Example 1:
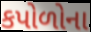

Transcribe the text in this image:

કપોળોના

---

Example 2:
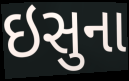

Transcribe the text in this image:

ઇસુના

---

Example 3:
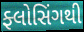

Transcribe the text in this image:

ફ્લોસિંગથી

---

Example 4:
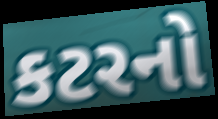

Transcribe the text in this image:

કટરનો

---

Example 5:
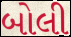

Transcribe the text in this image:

બોલી